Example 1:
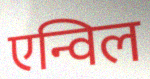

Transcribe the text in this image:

एन्विल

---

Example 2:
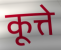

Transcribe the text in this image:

कूत्ते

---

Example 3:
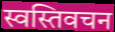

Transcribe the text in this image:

स्वस्तिवचन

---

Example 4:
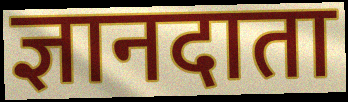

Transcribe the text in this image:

ज्ञानदाता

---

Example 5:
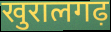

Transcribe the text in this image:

खुरालगढ़